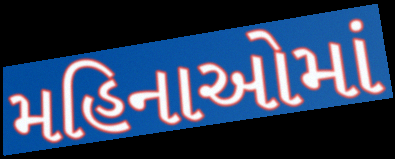
મહિનાઓમાં